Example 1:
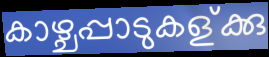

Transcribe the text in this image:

കാഴ്ചപ്പാടുകള്ക്കു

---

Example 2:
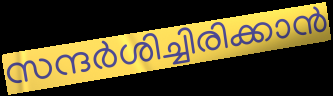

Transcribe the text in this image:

സന്ദർശിച്ചിരിക്കാൻ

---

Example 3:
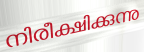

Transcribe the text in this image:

നിരീക്ഷിക്കുന്നു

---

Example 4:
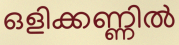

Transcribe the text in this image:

ഒളിക്കണ്ണിൽ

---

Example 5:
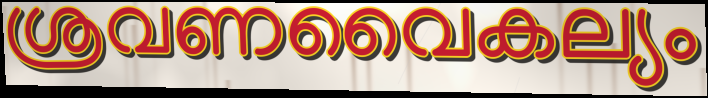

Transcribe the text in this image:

ശ്രവണവൈകല്യം